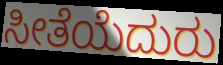
ಸೀತೆಯೆದುರು